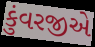
કુંવરજીએ